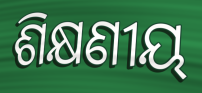
ଶିକ୍ଷଣୀୟ